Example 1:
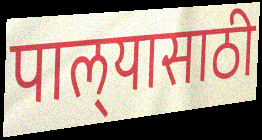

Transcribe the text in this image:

पाल्यासाठी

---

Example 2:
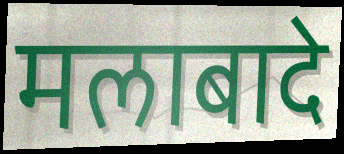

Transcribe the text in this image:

मलाबादे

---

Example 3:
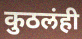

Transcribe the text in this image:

कुठलंही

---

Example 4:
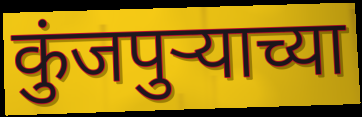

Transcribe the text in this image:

कुंजपुऱ्याच्या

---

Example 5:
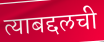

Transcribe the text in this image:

त्याबद्दलची